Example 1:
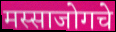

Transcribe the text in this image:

मस्साजोगचे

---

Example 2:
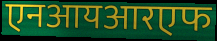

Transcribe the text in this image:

एनआयआरएफ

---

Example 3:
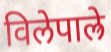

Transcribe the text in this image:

विलेपाल्रे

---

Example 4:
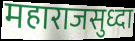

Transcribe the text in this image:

महाराजसुध्दा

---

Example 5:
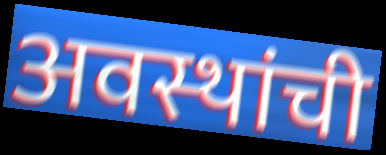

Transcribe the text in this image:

अवस्थांची